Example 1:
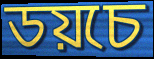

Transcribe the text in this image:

ডয়চে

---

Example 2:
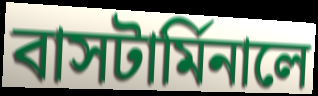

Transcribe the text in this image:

বাসটার্মিনালে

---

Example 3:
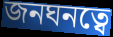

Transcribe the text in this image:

জনঘনত্বে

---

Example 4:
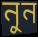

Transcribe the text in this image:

নুন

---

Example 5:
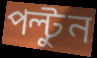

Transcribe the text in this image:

পল্টুন